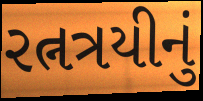
રત્નત્રયીનું